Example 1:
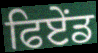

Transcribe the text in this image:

ਫਿਏਂਡ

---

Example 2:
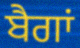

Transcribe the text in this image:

ਬੈਗਾਂ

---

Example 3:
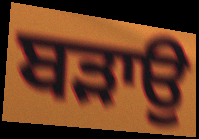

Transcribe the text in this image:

ਬਡ਼ਾਉ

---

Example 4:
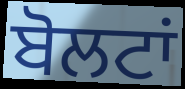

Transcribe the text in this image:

ਬੋਲਟਾਂ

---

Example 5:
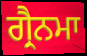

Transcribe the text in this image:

ਗ੍ਰੈਨਮਾ